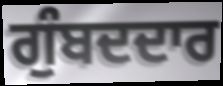
ਗੁੰਬਦਦਾਰ